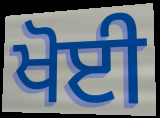
ਖੋਈ